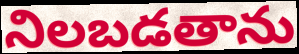
నిలబడతాను